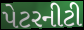
પેટરનીટી